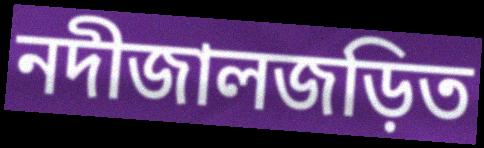
নদীজালজড়িত